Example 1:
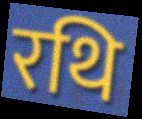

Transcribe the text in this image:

रथि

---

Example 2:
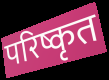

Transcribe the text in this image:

परिष्कृत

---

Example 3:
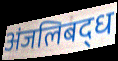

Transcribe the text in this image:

अंजलिबद्ध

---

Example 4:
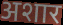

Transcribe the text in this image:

अशार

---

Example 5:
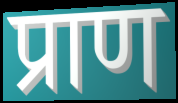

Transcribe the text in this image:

प्राण